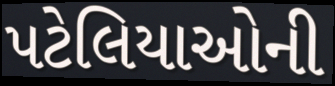
પટેલિયાઓની